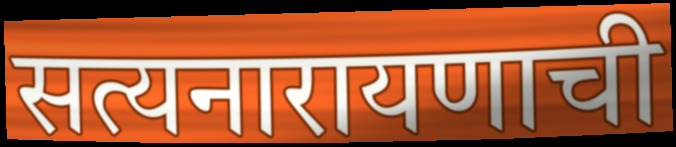
सत्यनारायणाची